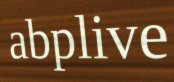
abplive